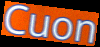
Cuon